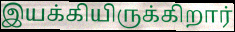
இயக்கியிருக்கிறார்